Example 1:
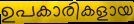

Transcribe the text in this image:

ഉപകാരികളായ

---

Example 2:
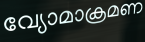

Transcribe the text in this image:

വ്യോമാക്രമണ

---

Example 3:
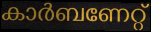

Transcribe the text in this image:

കാർബണേറ്റ്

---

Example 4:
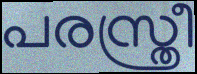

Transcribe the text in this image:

പരസ്ത്രീ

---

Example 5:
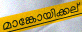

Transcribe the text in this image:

മാങ്കോയിക്കല്